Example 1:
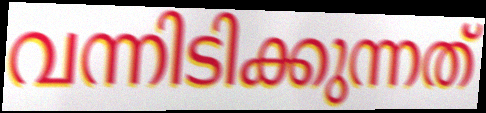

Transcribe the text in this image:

വന്നിടിക്കുന്നത്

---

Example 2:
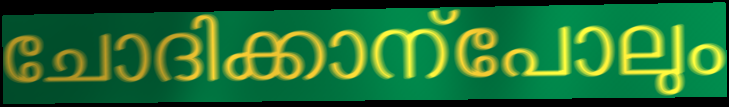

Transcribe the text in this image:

ചോദിക്കാന്പോലും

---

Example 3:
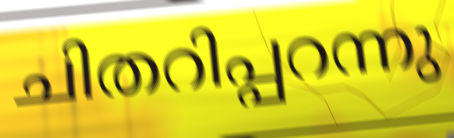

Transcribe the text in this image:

ചിതറിപ്പറന്നു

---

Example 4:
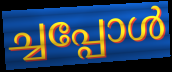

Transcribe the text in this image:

ച്ചപ്പോൾ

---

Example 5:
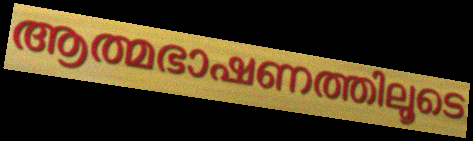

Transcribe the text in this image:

ആത്മഭാഷണത്തിലൂടെ